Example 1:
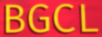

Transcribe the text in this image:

BGCL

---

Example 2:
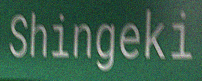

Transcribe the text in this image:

Shingeki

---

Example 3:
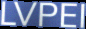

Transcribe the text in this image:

LVPEI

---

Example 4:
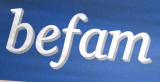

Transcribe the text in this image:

befam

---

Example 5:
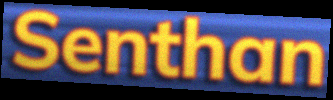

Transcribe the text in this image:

Senthan